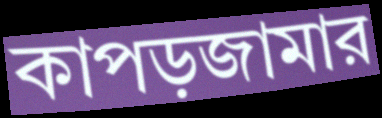
কাপড়জামার